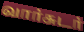
வார்சுடர்